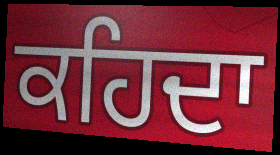
ਕਹਿਦਾ